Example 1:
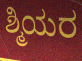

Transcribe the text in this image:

ಶ್ಮಿಯರ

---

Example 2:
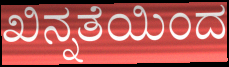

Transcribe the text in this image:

ಖಿನ್ನತೆಯಿಂದ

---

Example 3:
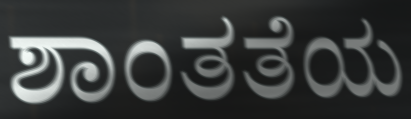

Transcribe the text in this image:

ಶಾಂತತೆಯ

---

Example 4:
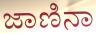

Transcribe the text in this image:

ಜಾಣಿನಾ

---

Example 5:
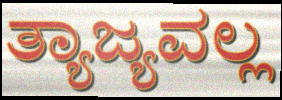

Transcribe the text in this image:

ತ್ಯಾಜ್ಯವಲ್ಲ